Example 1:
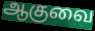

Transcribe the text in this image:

ஆகுவை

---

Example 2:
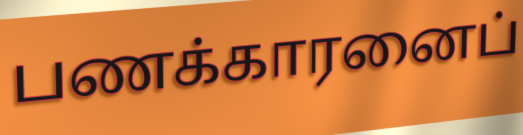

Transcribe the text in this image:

பணக்காரனைப்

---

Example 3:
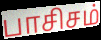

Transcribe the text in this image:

பாசிசம்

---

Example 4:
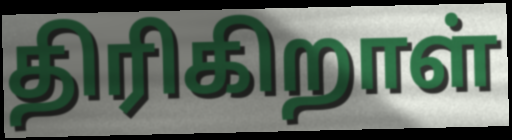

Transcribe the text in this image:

திரிகிறாள்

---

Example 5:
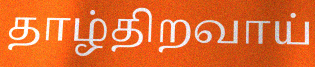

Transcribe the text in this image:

தாழ்திறவாய்